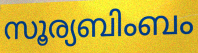
സൂര്യബിംബം